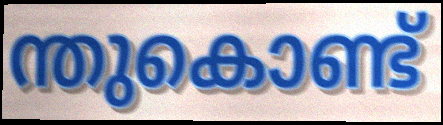
ന്തുകൊണ്ട്